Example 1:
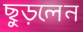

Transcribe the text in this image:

ছুড়লেন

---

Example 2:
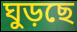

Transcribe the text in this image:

ঘুড়ছে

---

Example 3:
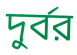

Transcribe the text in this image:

দুর্বর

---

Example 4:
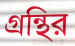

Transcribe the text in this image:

গ্রন্থির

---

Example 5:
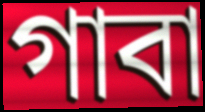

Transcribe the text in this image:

গাবা